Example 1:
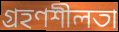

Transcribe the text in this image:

গ্রহণশীলতা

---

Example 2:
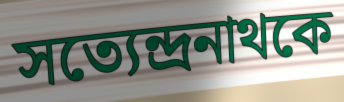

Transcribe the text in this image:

সত্যেন্দ্রনাথকে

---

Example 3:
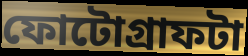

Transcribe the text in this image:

ফোটোগ্রাফটা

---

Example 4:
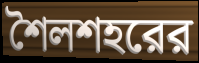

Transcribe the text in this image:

শৈলশহরের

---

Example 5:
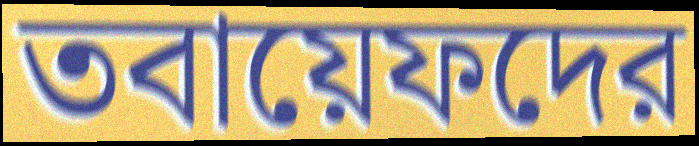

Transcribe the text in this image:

তবায়েফদের